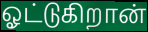
ஓட்டுகிறான்